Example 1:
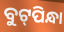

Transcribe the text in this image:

ବୁଟ୍‌ପିନ୍ଧା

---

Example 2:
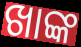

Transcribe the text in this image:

ଖାଙ୍କ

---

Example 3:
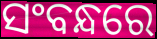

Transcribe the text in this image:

ସଂବନ୍ଧରେ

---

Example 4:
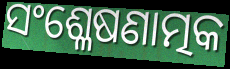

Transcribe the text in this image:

ସଂଶ୍ଳେଷଣାତ୍ମକ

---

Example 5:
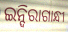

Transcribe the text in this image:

ଇନ୍ଦିରାଗାନ୍ଧୀ